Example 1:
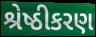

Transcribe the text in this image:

શ્રેષ્ઠીકરણ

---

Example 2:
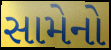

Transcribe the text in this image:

સામેનો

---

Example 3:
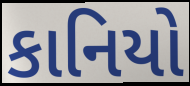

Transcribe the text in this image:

કાનિયો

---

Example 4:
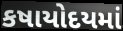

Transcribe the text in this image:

કષાયોદયમાં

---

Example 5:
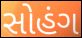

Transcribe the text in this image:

સોહંગ